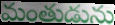
మంతుడును